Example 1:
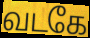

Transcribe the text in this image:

வடகே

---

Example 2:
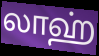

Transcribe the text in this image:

லாஹ்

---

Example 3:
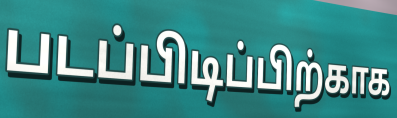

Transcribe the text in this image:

படப்பிடிப்பிற்காக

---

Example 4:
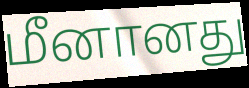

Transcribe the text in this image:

மீனானது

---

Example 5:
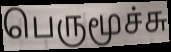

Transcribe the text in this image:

பெருமூச்சு